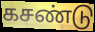
கசண்டு